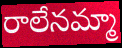
రాలేనమ్మా